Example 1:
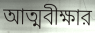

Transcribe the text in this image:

আত্মবীক্ষার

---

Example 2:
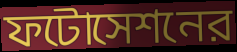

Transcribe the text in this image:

ফটোসেশনের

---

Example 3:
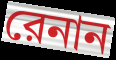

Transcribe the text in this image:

রেনান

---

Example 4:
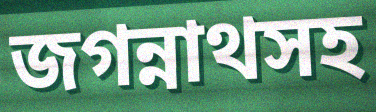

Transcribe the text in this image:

জগন্নাথসহ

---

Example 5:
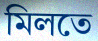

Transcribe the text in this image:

মিলতে